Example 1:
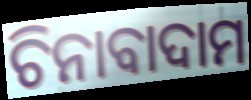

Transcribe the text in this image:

ଚିନାବାଦାମ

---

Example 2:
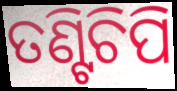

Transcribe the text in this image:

ତଣ୍ଟିଚିପି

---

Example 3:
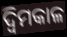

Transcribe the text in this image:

ଦ୍ବିମକାଳ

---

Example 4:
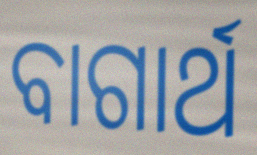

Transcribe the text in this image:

ବାଗାର୍ଥ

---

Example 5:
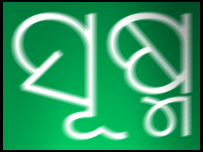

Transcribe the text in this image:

ସୂଷ୍ମ